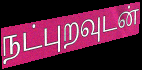
நட்புறவுடன்